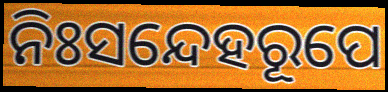
ନିଃସନ୍ଦେହରୂପେ